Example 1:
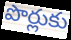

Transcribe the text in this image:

పొర్లుకు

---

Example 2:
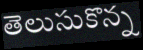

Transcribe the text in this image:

తెలుసుకొన్న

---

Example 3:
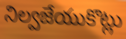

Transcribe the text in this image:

నిల్వజేయుకొట్లు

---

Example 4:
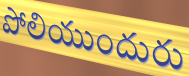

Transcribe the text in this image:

పోలియుందురు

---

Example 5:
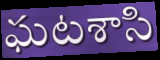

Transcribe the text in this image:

ఘటశాసి